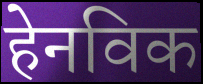
हेनविक